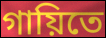
গায়িতে